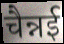
चैन्नई